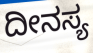
ದೀನಸ್ಯ